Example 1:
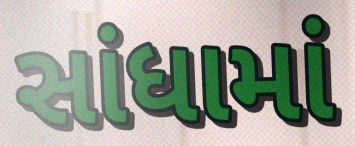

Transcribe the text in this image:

સાંધામાં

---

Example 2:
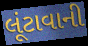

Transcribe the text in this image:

લૂંટાવાની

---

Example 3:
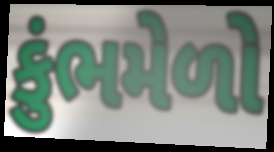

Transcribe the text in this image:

કુંભમેળો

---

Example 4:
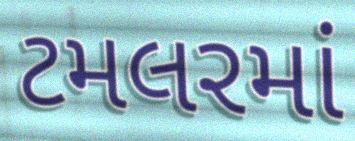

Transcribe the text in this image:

ટમલરમાં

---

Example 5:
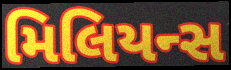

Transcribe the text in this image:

મિલિયન્સ